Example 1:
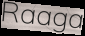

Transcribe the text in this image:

Raaga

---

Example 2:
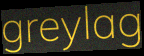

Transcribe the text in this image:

greylag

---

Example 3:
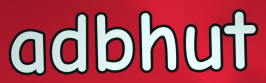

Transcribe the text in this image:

adbhut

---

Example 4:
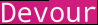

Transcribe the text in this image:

Devour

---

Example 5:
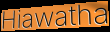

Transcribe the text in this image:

Hiawatha